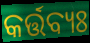
କର୍ତ୍ତବ୍ୟଃ